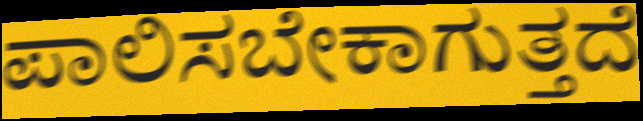
ಪಾಲಿಸಬೇಕಾಗುತ್ತದೆ